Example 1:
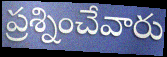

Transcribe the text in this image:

ప్రశ్నించేవారు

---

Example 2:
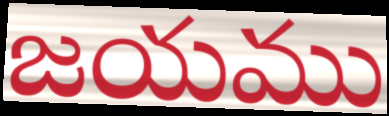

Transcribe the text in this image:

జయము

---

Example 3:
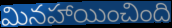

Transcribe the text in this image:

మినహాయించింది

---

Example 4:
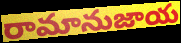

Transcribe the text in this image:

రామానుజాయ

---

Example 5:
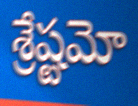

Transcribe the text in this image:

శ్రేష్టమో